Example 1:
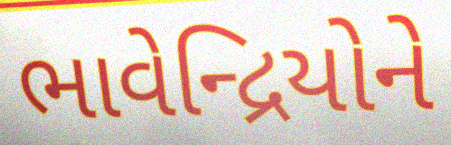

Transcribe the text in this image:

ભાવેન્દ્રિયોને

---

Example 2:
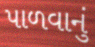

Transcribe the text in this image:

પાળવાનું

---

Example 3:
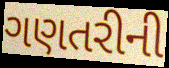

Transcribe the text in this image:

ગણતરીની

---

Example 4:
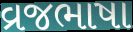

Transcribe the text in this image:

વ્રજભાષા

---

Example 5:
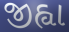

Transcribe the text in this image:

જીહ્વા